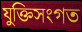
যুক্তিসংগত